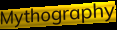
Mythography